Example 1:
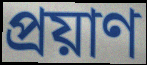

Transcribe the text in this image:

প্ৰয়াণ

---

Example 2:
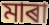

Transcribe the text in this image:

মাৰা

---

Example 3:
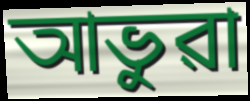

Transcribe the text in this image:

আভুৱা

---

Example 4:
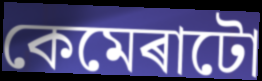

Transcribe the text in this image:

কেমেৰাটো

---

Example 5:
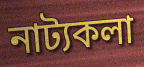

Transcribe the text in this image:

নাট্যকলা